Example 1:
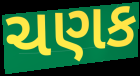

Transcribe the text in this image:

ચણક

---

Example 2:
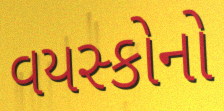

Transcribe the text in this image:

વયસ્કોનો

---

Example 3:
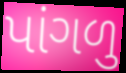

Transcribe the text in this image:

પાંગળુ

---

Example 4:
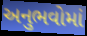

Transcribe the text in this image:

અનુભવોમાં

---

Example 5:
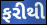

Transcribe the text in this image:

ફરીથી